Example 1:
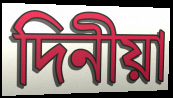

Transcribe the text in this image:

দিনীয়া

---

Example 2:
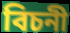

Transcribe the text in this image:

বিচনী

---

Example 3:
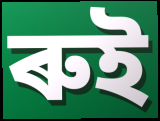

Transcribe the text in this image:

ৰুই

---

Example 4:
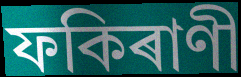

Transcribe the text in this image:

ফকিৰাণী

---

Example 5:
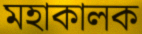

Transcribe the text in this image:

মহাকালক